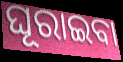
ଘୂରାଇବା